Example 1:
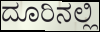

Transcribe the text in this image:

ದೂರಿನಲ್ಲಿ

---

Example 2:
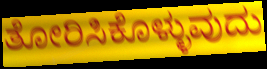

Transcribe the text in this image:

ತೋರಿಸಿಕೊಳ್ಳುವುದು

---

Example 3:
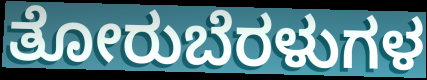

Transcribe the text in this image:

ತೋರುಬೆರಳುಗಳ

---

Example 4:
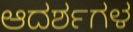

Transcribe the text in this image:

ಆದರ್ಶಗಳ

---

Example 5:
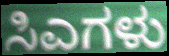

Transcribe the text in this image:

ಸಿಎಗಳು